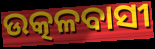
ଉତ୍କଳବାସୀ